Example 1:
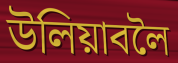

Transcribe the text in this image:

উলিয়াবলৈ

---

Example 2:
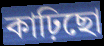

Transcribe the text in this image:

কাঢ়িছো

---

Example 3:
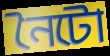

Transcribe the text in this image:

নৈটো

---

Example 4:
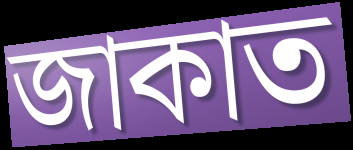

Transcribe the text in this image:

জাকাত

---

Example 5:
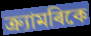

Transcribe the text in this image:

ক্ৰ্যামৰিকে